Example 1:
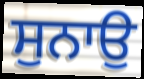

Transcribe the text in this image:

ਸੁਨਾਉ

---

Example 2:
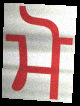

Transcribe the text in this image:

ਮੋ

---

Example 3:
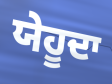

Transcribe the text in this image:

ਯੇਹੂਦਾ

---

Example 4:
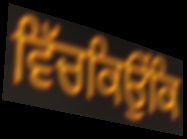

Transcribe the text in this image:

ਵਿੱਚਕਿਉਂਕਿ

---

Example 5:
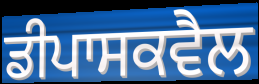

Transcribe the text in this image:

ਡੀਪਾਸਕਵੈਲ